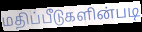
மதிப்பீடுகளின்படி